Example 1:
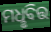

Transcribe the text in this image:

ମଧୢବିତ୍ତ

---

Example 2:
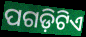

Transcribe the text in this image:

ପଗଡ଼ିଟିଏ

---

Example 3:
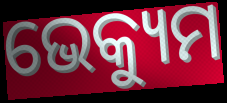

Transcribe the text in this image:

ଭେକ୍ୟୁମ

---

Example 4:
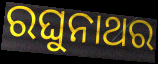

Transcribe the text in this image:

ରଘୁନାଥର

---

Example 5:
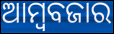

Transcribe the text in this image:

ଆମ୍ୱବଜାର